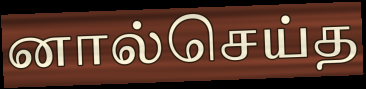
னால்செய்த